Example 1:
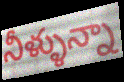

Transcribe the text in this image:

నీళ్ళున్నా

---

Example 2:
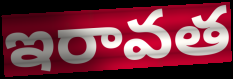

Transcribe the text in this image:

ఇరావత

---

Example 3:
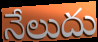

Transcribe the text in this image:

నేలుదు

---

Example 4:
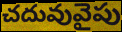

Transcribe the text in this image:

చదువువైపు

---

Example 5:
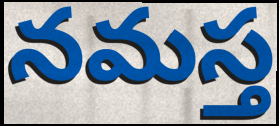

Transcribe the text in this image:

నమస్త